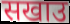
सखाउ